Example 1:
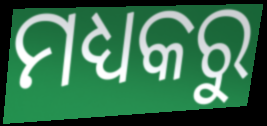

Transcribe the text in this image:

ମଧ୍ୟକରୁ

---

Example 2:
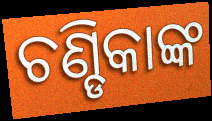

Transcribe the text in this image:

ଚଣ୍ଡିକାଙ୍କ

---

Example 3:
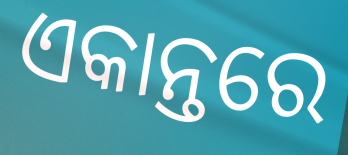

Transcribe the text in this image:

ଏକାନ୍ତରେ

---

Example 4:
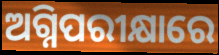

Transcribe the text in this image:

ଅଗ୍ନିପରୀକ୍ଷାରେ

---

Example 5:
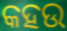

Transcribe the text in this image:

କହଉ